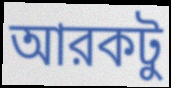
আরকটু